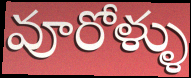
వూరోళ్ళు